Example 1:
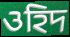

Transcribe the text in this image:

ওহিদ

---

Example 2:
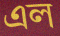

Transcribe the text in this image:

এল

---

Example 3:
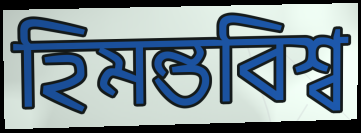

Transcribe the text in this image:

হিমন্তবিশ্ব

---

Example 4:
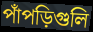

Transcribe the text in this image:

পাঁপড়িগুলি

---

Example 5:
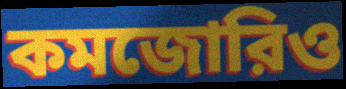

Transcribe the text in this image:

কমজোরিও